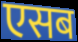
एसब